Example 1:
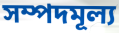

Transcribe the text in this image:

সম্পদমূল্য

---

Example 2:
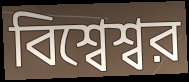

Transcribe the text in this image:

বিশ্বেশ্বর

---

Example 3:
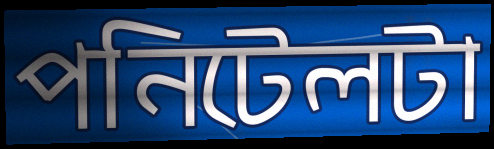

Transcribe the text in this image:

পনিটেলটা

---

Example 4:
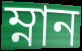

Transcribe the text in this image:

ম্নান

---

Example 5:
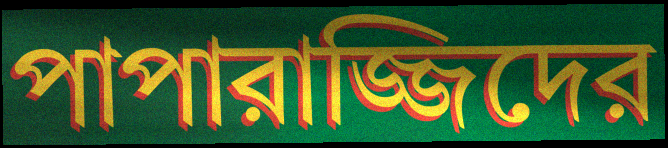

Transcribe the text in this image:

পাপারাজ্জিদের